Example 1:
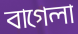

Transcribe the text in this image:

বাগেলা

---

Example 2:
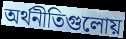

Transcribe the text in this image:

অর্থনীতিগুলোয়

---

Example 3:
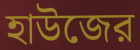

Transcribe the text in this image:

হাউজের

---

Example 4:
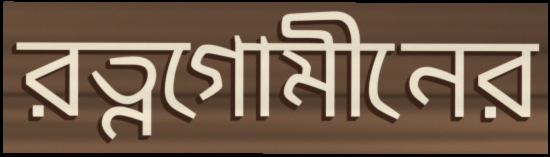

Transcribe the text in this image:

রত্নগোমীনের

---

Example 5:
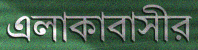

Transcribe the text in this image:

এলাকাবাসীর